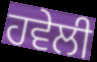
ਹਵੇਲੀ